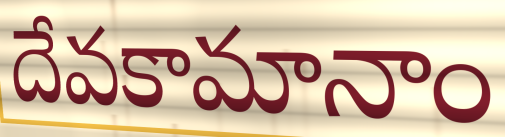
దేవకామానాం